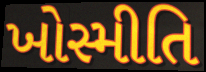
ખોસ્મીતિ